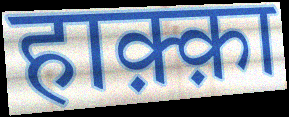
हाक़्क़ा